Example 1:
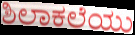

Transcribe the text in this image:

ಶಿಲಾಕಲೆಯು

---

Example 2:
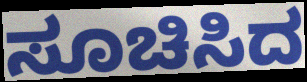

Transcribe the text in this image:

ಸೂಚಿಸಿದ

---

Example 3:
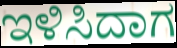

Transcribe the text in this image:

ಇಳಿಸಿದಾಗ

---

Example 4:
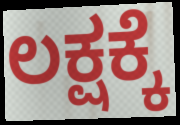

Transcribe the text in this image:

ಲಕ್ಷಕ್ಕೆ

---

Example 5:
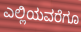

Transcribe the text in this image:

ಎಲ್ಲಿಯವರೆಗೂ